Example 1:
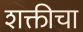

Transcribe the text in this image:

शक्तीचा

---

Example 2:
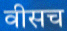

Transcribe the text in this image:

वीसच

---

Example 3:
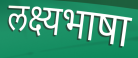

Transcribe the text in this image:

लक्ष्यभाषा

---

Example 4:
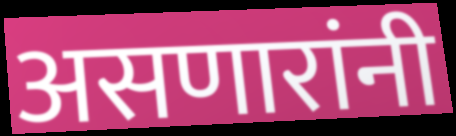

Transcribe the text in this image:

असणारांनी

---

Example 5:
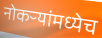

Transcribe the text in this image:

नोकऱ्यांमध्येच